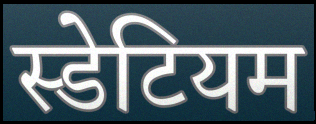
स्डेटियम